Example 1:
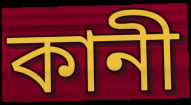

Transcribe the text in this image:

কানী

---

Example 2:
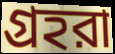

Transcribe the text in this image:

গ্রহরা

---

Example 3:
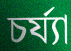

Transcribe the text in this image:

চর্য্যা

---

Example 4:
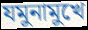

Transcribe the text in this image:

যমুনামুখে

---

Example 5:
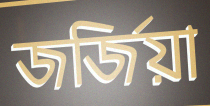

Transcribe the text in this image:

জর্জিয়া